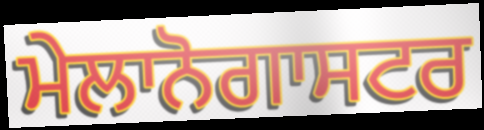
ਮੇਲਾਨੋਗਾਸਟਰ